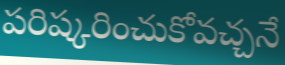
పరిష్కరించుకోవచ్చనే